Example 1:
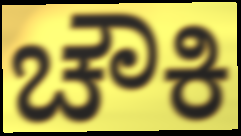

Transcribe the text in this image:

ಚೌಕಿ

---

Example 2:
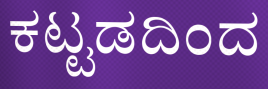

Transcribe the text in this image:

ಕಟ್ಟಡದಿಂದ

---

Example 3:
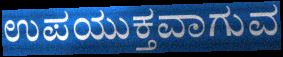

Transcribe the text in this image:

ಉಪಯುಕ್ತವಾಗುವ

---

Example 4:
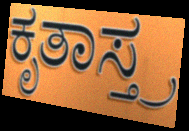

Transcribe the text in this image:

ಕೃತಾಸ್ತ್ರ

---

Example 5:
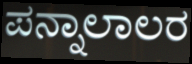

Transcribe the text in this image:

ಪನ್ನಾಲಾಲರ